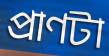
প্রাণটা